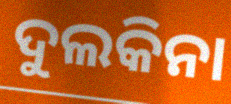
ଦୁଲକିନା